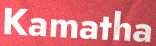
Kamatha